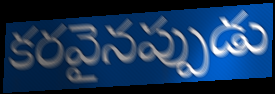
కరవైనప్పుడు